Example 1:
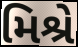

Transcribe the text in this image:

મિશ્રે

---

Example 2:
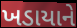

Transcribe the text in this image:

ખડાયાને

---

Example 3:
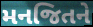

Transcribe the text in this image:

મનજિતને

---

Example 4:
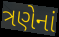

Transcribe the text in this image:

ત્રણેનાં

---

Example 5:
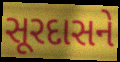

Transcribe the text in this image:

સૂરદાસને